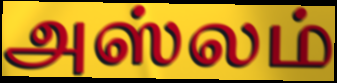
அஸ்லம்